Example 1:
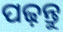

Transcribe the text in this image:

ପଢ଼ନ୍ତୁ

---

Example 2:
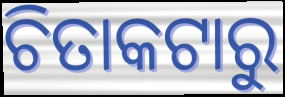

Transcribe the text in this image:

ଚିତାକଟାରୁ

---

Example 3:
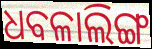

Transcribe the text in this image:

ଧବଳାଲିଙ୍ଗ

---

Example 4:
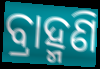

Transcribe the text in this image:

ବ୍ରାହ୍ମଣି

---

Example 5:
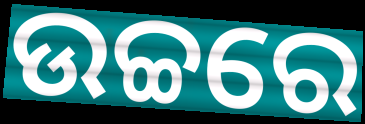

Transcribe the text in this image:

ଉଚ୍ଚରେ